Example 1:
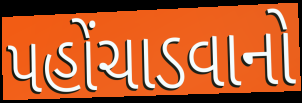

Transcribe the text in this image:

પહોંચાડવાનો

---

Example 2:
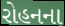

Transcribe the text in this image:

રોહનના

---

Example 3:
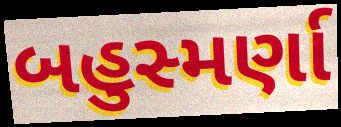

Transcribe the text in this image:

બહુસ્મર્ણા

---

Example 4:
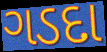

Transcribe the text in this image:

ગડદા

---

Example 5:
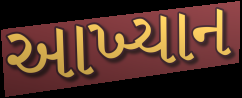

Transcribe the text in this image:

આખ્યાન